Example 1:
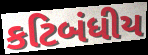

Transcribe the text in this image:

કટિબંધીય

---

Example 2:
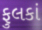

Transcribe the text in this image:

ફુલકાં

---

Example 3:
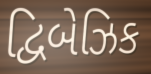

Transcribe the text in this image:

દ્વિબેઝિક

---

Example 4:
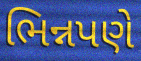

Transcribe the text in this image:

ભિન્નપણે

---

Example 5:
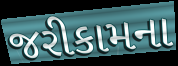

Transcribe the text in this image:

જરીકામના